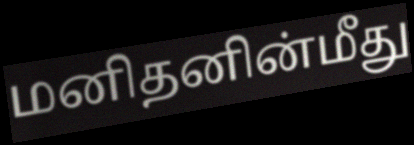
மனிதனின்மீது